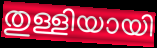
തുള്ളിയായി